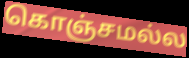
கொஞ்சமல்ல